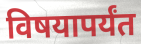
विषयापर्यंत